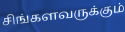
சிங்களவருக்கும்